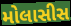
મોલાસીસ